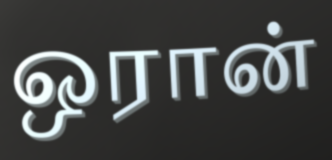
ஒரான்